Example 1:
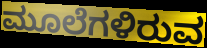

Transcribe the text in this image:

ಮೂಲೆಗಳಿರುವ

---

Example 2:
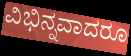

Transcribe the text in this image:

ವಿಭಿನ್ನವಾದರೂ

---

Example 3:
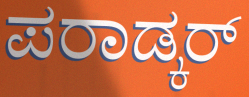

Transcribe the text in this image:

ಪರಾಡ್ಕರ್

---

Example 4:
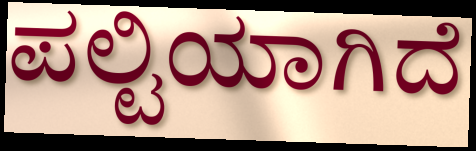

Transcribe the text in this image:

ಪಲ್ಟಿಯಾಗಿದೆ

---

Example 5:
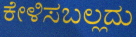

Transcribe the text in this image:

ಕೇಳಿಸಬಲ್ಲದು